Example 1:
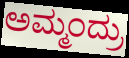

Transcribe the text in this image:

ಅಮ್ಮಂದ್ರು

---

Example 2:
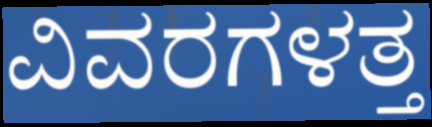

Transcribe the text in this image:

ವಿವರಗಳತ್ತ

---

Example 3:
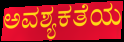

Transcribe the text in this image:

ಅವಶ್ಯಕತೆಯ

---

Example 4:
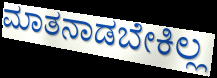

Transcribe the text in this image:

ಮಾತನಾಡಬೇಕಿಲ್ಲ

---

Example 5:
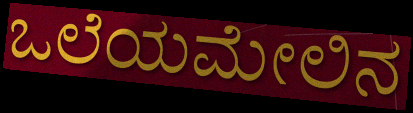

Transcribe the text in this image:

ಒಲೆಯಮೇಲಿನ